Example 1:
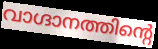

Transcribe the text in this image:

വാഗ്ദാനത്തിന്റെ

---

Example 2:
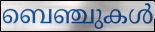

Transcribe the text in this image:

ബെഞ്ചുകൾ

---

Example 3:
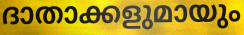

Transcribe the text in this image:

ദാതാക്കളുമായും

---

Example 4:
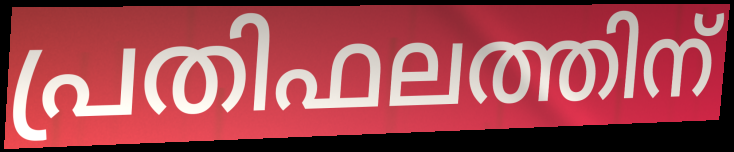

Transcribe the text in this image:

പ്രതിഫലത്തിന്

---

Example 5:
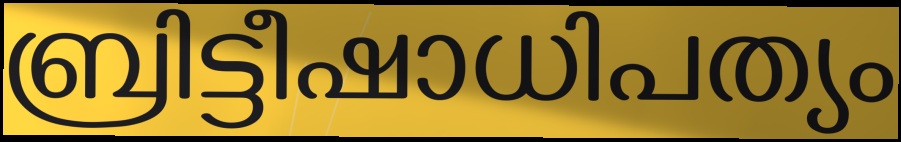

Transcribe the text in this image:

ബ്രിട്ടീഷാധിപത്യം